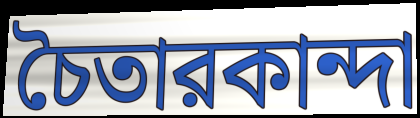
চৈতারকান্দা